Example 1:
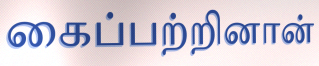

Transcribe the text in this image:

கைப்பற்றினான்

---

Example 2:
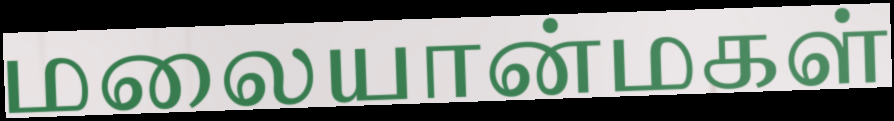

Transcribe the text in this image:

மலையான்மகள்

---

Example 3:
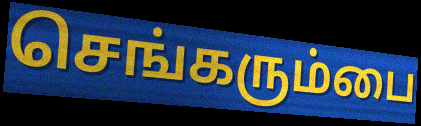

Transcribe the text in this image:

செங்கரும்பை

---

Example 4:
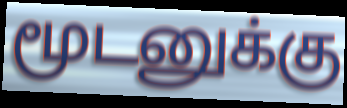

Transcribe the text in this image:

மூடனுக்கு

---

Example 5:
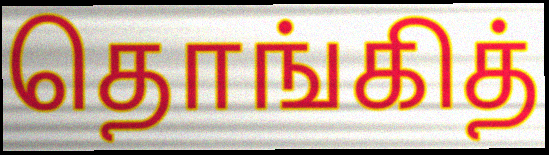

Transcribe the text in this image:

தொங்கித்